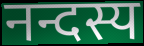
नन्दस्य